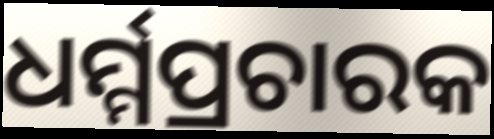
ଧର୍ମ୍ମପ୍ରଚାରକ